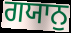
ਗਯਾਨੁ